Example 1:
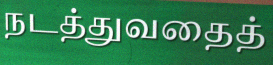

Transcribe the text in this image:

நடத்துவதைத்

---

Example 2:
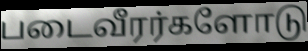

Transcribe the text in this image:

படைவீரர்களோடு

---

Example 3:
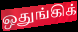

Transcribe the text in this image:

ஒதுங்கிக்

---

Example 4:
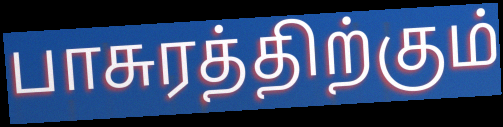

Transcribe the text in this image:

பாசுரத்திற்கும்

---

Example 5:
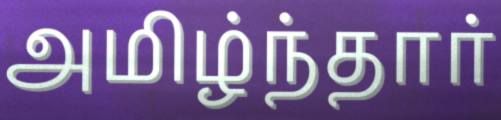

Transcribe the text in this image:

அமிழ்ந்தார்